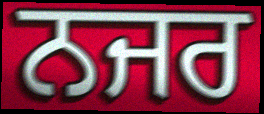
ਨਜਰ